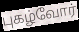
புகழ்வோர்